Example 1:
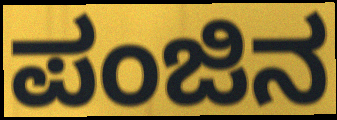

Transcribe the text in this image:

ಪಂಜಿನ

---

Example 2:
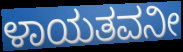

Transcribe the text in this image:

ಳಾಯತವನೀ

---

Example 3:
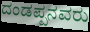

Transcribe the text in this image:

ದಂಡಪ್ಪನವರು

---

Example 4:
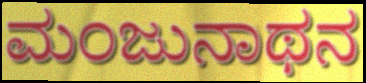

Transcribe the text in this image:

ಮಂಜುನಾಥನ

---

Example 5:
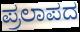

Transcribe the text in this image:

ಪ್ರಲಾಪದ